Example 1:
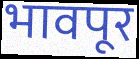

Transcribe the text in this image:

भावपूर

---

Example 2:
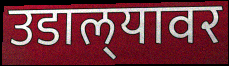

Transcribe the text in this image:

उडाल्यावर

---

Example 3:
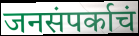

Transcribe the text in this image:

जनसंपर्काचं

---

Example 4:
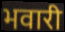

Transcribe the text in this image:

भवारी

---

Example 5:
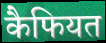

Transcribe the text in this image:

कैफियत